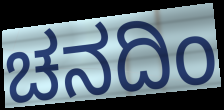
ಚನದಿಂ